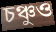
চঞ্চুও